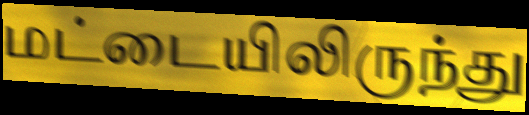
மட்டையிலிருந்து